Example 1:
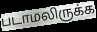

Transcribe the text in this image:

படாமலிருக்க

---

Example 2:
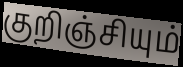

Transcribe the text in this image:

குறிஞ்சியும்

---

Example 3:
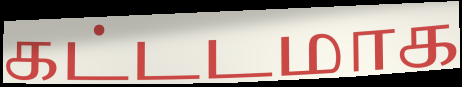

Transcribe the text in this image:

கட்டடமாக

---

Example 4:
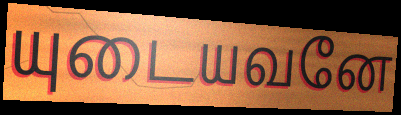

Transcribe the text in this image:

யுடையவனே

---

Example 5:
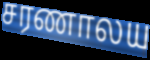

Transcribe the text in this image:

சரணாலய